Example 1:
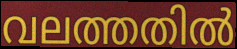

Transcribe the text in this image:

വലത്തതിൽ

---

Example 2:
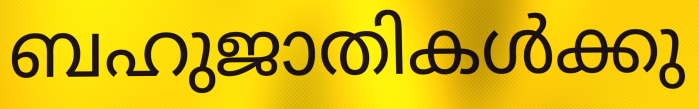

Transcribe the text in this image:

ബഹുജാതികൾക്കു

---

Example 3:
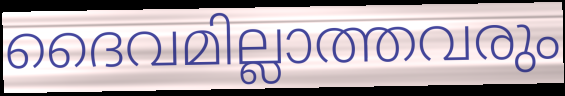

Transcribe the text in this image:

ദൈവമില്ലാത്തവരും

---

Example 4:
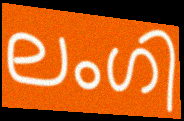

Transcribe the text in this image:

ലംഗി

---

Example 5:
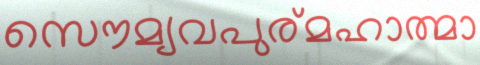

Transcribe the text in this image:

സൌമ്യവപുര്മഹാത്മാ